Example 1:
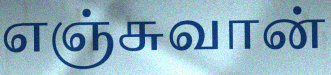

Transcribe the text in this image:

எஞ்சுவான்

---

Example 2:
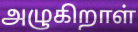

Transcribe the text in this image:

அழுகிறாள்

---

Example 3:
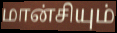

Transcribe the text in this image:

மான்சியும்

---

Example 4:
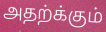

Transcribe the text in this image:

அதற்க்கும்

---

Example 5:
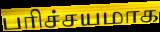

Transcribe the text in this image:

பரிச்சயமாக